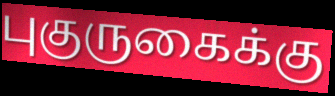
புகுருகைக்கு